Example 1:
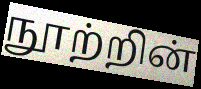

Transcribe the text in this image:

நூற்றின்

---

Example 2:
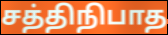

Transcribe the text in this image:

சத்திநிபாத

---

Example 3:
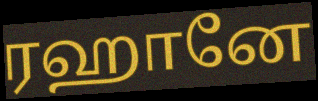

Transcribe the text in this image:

ரஹானே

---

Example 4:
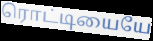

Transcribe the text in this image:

ரொட்டியையே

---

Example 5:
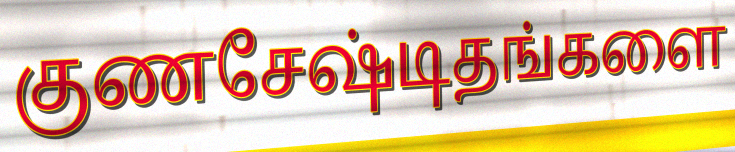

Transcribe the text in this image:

குணசேஷ்டிதங்களை